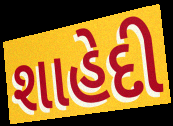
શાહેદી